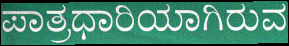
ಪಾತ್ರಧಾರಿಯಾಗಿರುವ